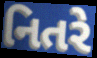
નિતરે